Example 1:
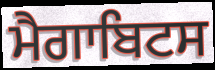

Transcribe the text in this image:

ਮੈਗਾਬਿਟਸ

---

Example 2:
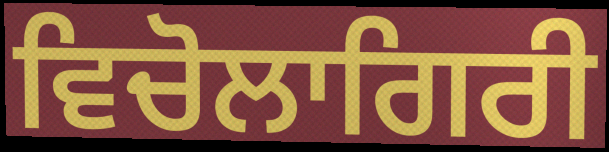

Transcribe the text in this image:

ਵਿਚੋਲਾਗਿਰੀ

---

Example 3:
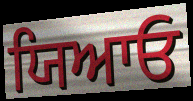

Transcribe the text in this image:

ਯਿਆਓ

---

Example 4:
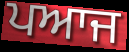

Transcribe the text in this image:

ਪਆਜ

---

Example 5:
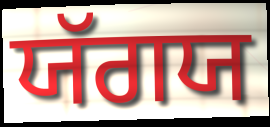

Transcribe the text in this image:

ਯੱਗਯ